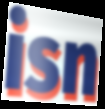
isn